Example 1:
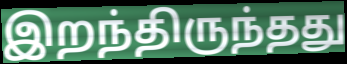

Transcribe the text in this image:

இறந்திருந்தது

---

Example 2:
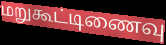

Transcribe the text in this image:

மறுகூட்டிணைவு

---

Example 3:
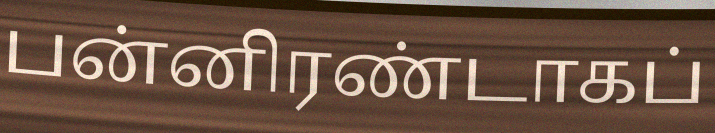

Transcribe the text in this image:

பன்னிரண்டாகப்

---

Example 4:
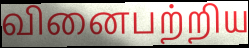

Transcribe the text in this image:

வினைபற்றிய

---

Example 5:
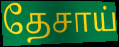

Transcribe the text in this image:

தேசாய்